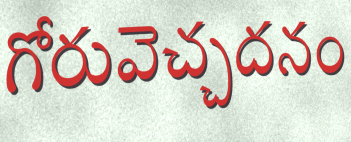
గోరువెచ్చదనం